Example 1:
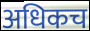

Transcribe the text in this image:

अधिकच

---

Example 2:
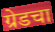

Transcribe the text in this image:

ग्रेडचा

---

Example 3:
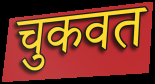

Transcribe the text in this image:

चुकवत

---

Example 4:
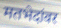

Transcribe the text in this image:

मतभेदांवर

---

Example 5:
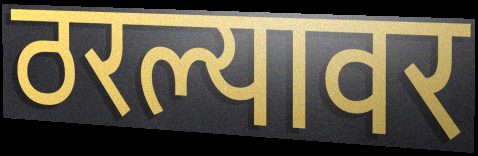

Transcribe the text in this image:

ठरल्यावर